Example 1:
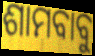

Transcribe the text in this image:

ଶାମବାବୁ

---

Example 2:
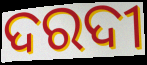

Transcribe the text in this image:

ଦରଦୀ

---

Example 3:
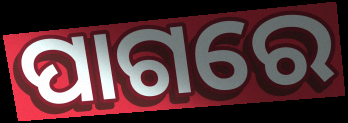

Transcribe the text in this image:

ପାଗରେ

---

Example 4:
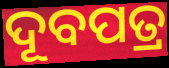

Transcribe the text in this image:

ଦୂବପତ୍ର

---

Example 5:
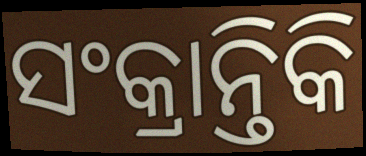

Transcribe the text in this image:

ସଂକ୍ରାନ୍ତିକି